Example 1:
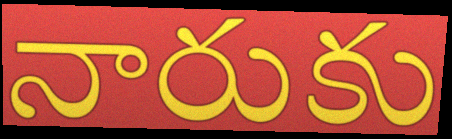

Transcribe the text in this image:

నారుకు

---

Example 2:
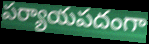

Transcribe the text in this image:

పర్యాయపదంగా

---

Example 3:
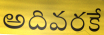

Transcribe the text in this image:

అదివరకే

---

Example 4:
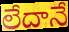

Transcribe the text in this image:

లేదానే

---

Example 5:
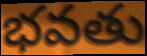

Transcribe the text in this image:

భవతు